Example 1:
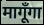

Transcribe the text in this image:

मागूँगा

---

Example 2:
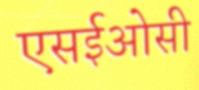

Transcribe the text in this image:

एसईओसी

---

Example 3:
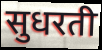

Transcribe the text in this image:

सुधरती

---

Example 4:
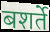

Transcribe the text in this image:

बशर्ते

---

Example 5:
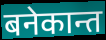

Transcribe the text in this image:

बनेकान्त